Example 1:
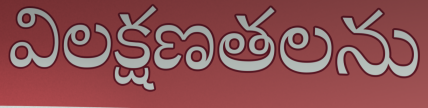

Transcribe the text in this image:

విలక్షణతలను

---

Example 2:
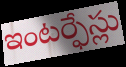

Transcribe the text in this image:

ఇంటర్ఫేస్లు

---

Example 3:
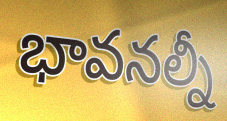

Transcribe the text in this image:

భావనల్నీ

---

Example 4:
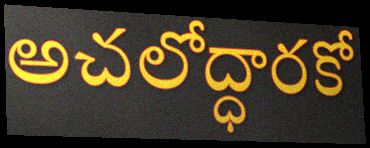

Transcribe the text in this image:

అచలోద్ధారకో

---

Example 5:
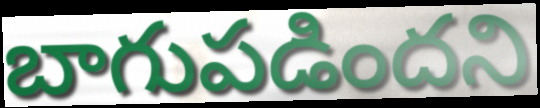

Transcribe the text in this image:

బాగుపడిందని